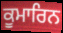
ਕੂਮਾਰਿਨ